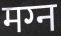
मग्‍न